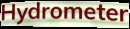
Hydrometer